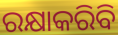
ରକ୍ଷାକରିବି